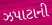
ઝપાટાની